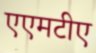
एएमटीए